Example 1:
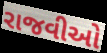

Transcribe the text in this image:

રાજવીઓ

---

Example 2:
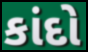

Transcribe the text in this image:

કાંદો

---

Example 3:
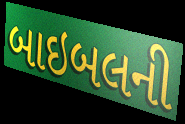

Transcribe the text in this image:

બાઇબલની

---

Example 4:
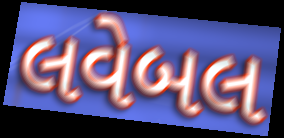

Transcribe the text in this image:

લવેબલ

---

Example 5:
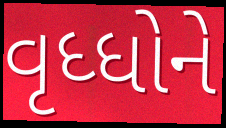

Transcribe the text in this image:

વૃધ્ધોને